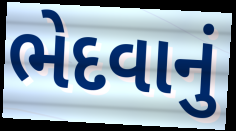
ભેદવાનું